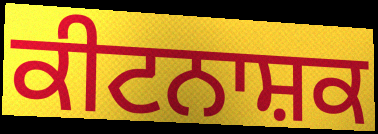
ਕੀਟਨਾਸ਼ਕ